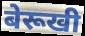
बेरूखी